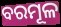
ବରମୂଳ